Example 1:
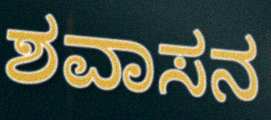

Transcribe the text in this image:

ಶವಾಸನ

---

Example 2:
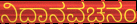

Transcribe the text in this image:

ನಿದಾನವಚನಂ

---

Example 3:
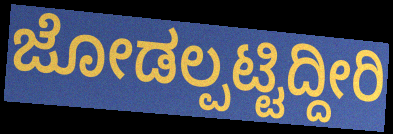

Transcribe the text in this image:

ಜೋಡಲ್ಪಟ್ಟಿದ್ದೀರಿ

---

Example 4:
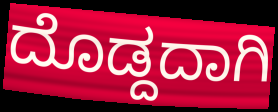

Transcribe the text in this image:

ದೊಡ್ದದಾಗಿ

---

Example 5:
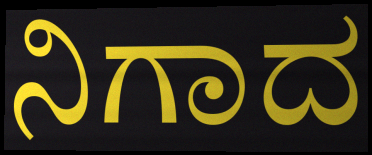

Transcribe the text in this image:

ನಿಗಾದ